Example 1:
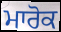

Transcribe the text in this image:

ਮਾਰੋਕ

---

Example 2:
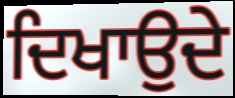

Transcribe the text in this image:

ਦਿਖਾਉਦੇ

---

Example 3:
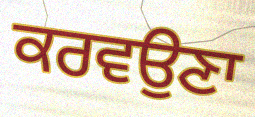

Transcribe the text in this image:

ਕਰਵਉਣਾ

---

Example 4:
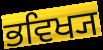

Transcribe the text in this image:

ਭਵਿਖ੍ਯ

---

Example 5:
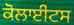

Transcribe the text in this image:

ਕੋਲਾਈਟਸ